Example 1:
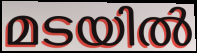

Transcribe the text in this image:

മടയിൽ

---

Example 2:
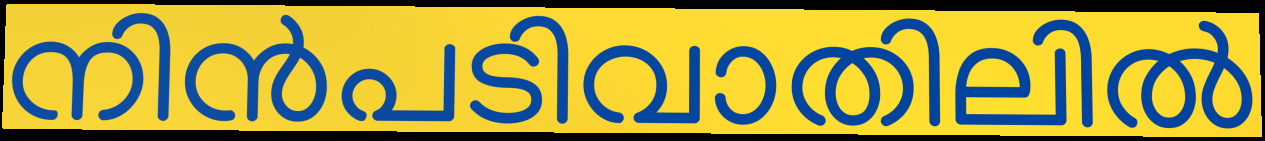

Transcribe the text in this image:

നിൻപടിവാതിലിൽ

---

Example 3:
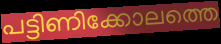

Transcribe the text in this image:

പട്ടിണിക്കോലത്തെ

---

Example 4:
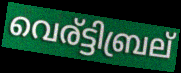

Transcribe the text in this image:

വെര്ട്ടിബ്രല്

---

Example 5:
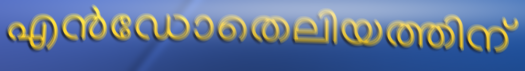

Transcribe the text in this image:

എൻഡോതെലിയത്തിന്